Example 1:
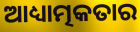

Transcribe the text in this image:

ଆଧ୍ୟାତ୍ମକତାର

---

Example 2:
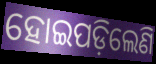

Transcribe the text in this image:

ହୋଇପଡ଼ିଲେଣି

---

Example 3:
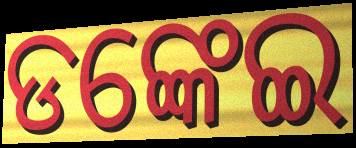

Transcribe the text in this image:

ଡଙ୍କେଇ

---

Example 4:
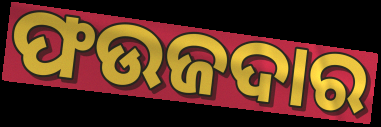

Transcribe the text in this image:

ଫଉଜଦାର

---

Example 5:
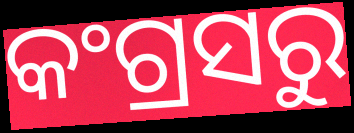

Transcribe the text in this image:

କଂଗ୍ରସରୁ